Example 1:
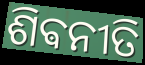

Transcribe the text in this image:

ଶିଵନୀତି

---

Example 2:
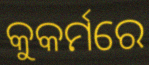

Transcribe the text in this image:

କୁକର୍ମରେ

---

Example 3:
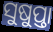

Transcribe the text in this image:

ସୁଷୁପ୍ତା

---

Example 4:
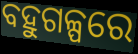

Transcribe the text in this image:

ବହୁଗଳ୍ପରେ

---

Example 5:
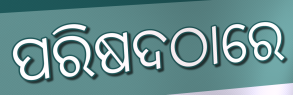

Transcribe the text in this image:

ପରିଷଦଠାରେ